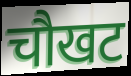
चौखट